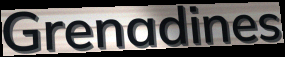
Grenadines